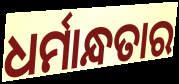
ଧର୍ମାନ୍ଧତାର